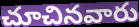
చూచినవారు